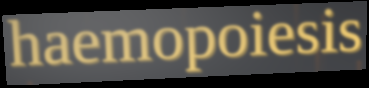
haemopoiesis